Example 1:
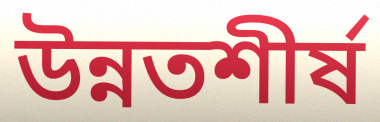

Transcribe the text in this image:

উন্নতশীর্ষ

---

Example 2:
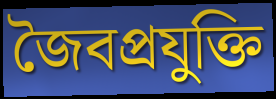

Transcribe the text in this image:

জৈবপ্রযুক্তি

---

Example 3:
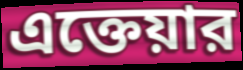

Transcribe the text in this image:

এক্তেয়ার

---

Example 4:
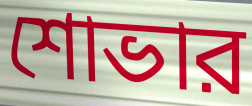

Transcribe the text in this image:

শোভার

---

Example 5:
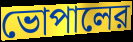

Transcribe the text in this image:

ভোপালের